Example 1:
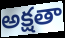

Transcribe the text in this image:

అక్షతా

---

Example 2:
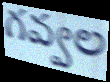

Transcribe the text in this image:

గవ్వల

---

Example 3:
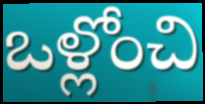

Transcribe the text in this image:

ఒళ్లోంచి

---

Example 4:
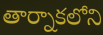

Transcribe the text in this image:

తార్నాకలోని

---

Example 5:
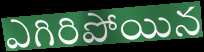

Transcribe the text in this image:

ఎగిరిపోయిన